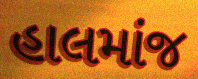
હાલમાંજ